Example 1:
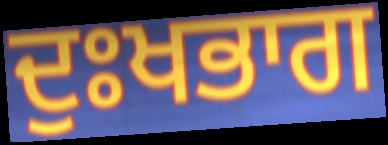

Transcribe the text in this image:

ਦੁਃਖਭਾਗ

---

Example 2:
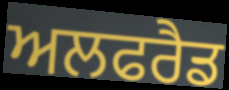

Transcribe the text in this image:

ਅਲਫਰੈਡ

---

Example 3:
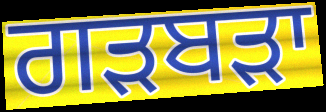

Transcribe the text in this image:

ਗੜਬੜਾ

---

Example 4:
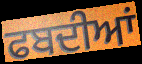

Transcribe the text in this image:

ਫਬਦੀਆਂ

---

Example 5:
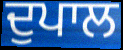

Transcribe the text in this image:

ਦੁਪਾਲ